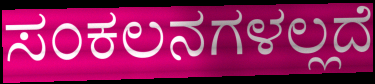
ಸಂಕಲನಗಳಲ್ಲದೆ